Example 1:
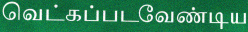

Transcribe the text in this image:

வெட்கப்படவேண்டிய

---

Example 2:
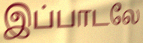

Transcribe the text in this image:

இப்பாடலே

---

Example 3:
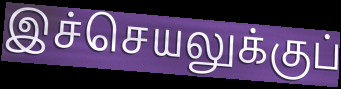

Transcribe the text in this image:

இச்செயலுக்குப்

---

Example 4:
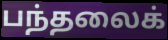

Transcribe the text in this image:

பந்தலைக்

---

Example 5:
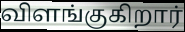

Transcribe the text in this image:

விளங்குகிறார்